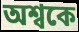
অশ্বকে